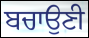
ਬਚਾਉਣੀ